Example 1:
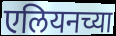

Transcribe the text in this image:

एलियनच्या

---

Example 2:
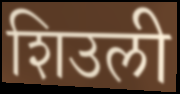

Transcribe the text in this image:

शिउली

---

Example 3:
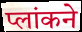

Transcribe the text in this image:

प्लांकने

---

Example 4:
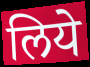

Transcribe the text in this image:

लिये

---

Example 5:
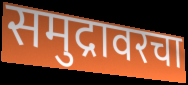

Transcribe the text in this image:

समुद्रावरचा